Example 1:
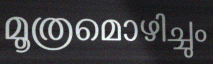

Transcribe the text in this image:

മൂത്രമൊഴിച്ചും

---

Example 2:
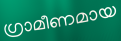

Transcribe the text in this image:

ഗ്രാമീണമായ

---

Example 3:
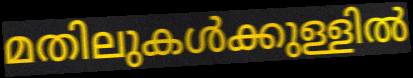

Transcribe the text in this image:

മതിലുകൾക്കുള്ളിൽ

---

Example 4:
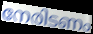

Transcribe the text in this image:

നേരിടണം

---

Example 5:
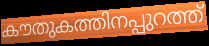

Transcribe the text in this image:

കൗതുകത്തിനപ്പുറത്ത്